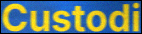
Custodi